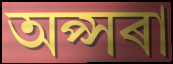
অপ্সৰা